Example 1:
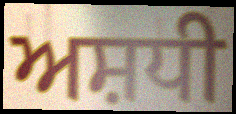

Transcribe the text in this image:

ਅਸ਼ਧੀ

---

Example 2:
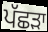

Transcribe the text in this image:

ਪੱਛੜਾ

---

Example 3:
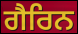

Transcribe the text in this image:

ਗੈਰਿਨ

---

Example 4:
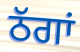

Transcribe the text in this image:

ਠੱਗਾਂ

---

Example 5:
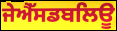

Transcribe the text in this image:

ਜੇਐੱਸਡਬਲਿਊ